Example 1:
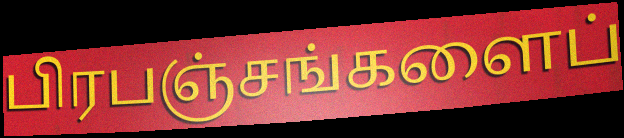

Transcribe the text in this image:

பிரபஞ்சங்களைப்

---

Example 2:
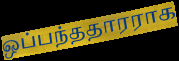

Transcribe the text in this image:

ஒப்பந்ததாரராக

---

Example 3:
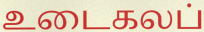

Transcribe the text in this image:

உடைகலப்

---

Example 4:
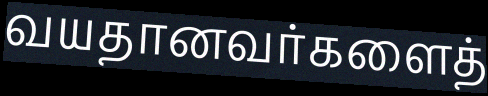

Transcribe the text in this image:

வயதானவர்களைத்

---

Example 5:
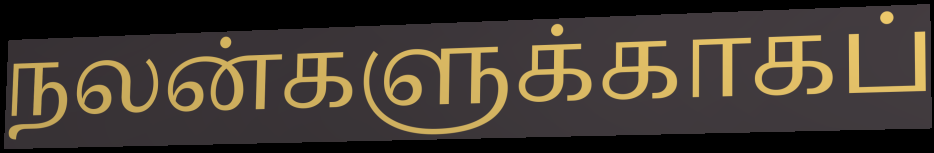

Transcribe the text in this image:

நலன்களுக்காகப்